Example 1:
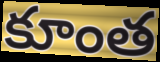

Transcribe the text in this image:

కూంత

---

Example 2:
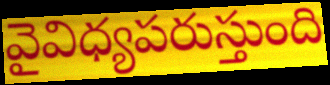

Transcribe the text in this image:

వైవిధ్యపరుస్తుంది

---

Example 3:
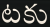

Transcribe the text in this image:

టకు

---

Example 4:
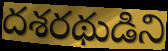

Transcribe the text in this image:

దశరథుడిని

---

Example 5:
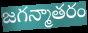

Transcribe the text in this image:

జగన్మాతరం